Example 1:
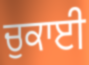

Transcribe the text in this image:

ਚੁਕਾਈ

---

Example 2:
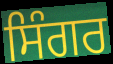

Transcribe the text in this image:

ਸਿੰਗਰ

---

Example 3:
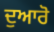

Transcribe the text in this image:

ਦੁਆਰੋ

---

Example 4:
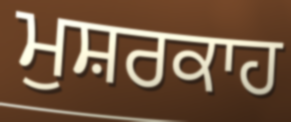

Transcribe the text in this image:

ਮੁਸ਼ਰਕਾਹ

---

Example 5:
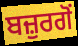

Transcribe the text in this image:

ਬਜ਼ੁਰਗੋਂ